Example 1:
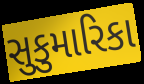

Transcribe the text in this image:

સુકુમારિકા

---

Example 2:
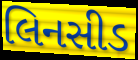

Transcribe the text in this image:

લિનસીડ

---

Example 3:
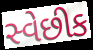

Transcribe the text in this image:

સ્વેછીક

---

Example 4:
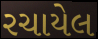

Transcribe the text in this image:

રચાયેલ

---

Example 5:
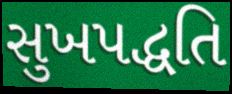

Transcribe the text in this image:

સુખપદ્ધતિ